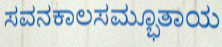
ಸವನಕಾಲಸಮ್ಭೂತಾಯ